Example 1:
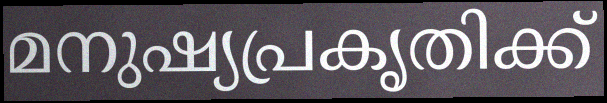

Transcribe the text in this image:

മനുഷ്യപ്രകൃതിക്ക്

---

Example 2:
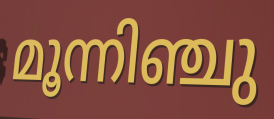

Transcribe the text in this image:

മൂന്നിഞ്ചു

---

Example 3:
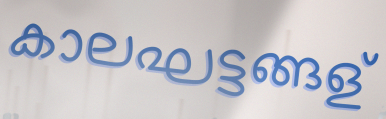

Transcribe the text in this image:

കാലഘട്ടങ്ങള്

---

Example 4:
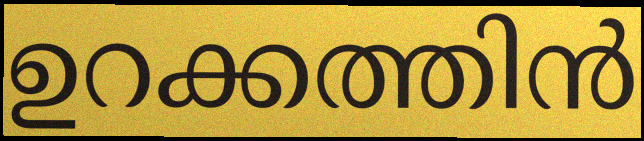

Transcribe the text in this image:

ഉറക്കത്തിൻ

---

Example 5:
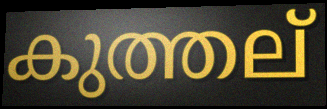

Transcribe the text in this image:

കുത്തല്